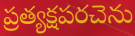
ప్రత్యక్షపరచెను